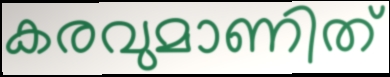
കരവുമാണിത്